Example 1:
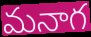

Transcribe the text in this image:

మనాగ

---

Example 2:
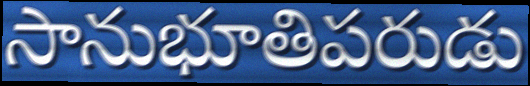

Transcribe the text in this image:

సానుభూతిపరుడు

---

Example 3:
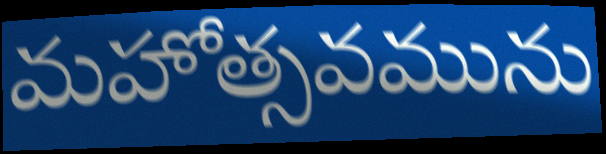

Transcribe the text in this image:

మహోత్సవమును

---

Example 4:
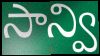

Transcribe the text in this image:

సాన్వి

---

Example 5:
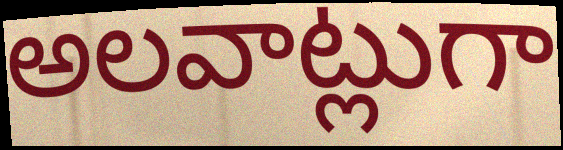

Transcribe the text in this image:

అలవాట్లుగా